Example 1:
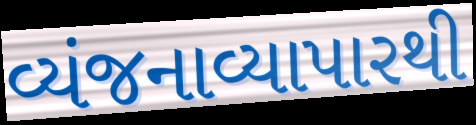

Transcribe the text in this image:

વ્યંજનાવ્યાપારથી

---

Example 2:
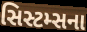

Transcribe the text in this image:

સિસ્ટમ્સના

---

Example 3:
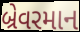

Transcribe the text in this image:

બ્રેવરમાન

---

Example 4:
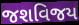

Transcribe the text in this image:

જશવિજય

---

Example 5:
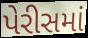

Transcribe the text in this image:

પેરીસમાં